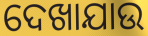
ଦେଖାଯାଉ